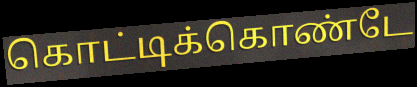
கொட்டிக்கொண்டே